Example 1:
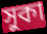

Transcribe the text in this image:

সুকা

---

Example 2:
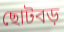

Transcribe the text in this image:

ছোটবড়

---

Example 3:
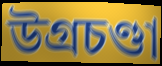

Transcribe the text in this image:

উগ্রচণ্ডা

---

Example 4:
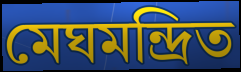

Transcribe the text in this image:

মেঘমন্দ্রিত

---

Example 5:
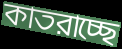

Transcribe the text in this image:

কাতরাচ্ছে